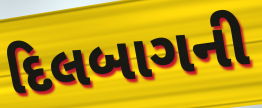
દિલબાગની